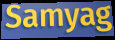
Samyag